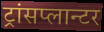
ट्रांसप्लान्टर